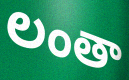
లంతా